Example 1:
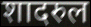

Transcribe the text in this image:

शादरुल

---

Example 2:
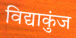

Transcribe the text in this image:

विद्याकुंज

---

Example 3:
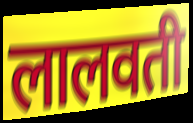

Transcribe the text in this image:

लालवती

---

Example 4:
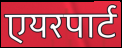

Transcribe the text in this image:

एयरपार्ट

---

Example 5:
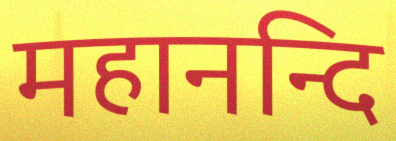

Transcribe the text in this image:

महानन्दि